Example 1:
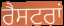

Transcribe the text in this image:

ਰੈਸਟਰਾਂ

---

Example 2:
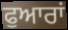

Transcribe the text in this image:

ਫੁਆਰਾਂ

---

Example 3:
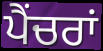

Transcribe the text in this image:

ਪੈਂਚਰਾਂ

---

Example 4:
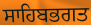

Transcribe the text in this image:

ਸਾਹਿਬਭਗਤ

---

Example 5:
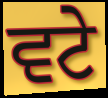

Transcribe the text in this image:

ਵਟੇ